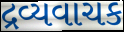
દ્રવ્યવાચક